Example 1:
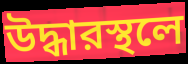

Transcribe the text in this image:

উদ্ধারস্থলে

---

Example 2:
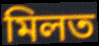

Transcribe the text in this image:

মিলত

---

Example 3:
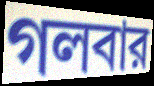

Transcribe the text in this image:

গলবার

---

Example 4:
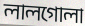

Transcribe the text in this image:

লালগোলা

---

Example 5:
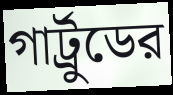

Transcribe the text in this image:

গার্ট্রুডের